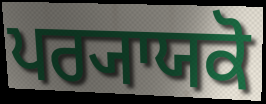
ਪਰ੍ਯਾਯਕੋ